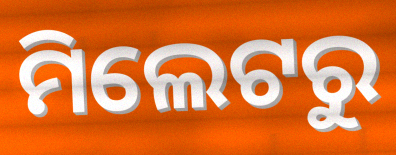
ମିଲେଟରୁ